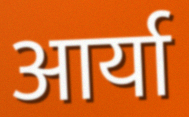
आर्या